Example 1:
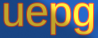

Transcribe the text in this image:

uepg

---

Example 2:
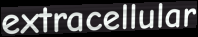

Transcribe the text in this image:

extracellular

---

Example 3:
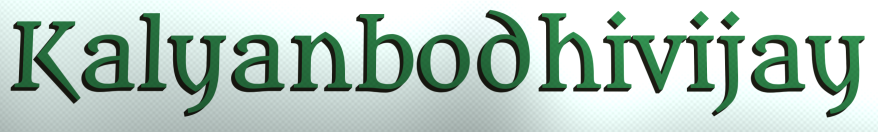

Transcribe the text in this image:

Kalyanbodhivijay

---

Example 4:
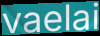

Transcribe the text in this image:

vaelai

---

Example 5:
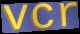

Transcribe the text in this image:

vcr